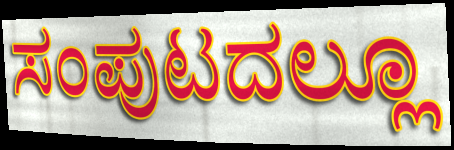
ಸಂಪುಟದಲ್ಲೂ